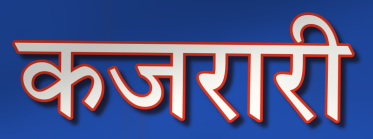
कजरारी